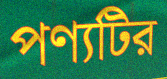
পণ্যটির